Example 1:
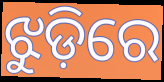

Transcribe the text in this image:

ଝୁଡ଼ିରେ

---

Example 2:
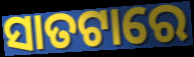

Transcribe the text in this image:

ସାତଟାରେ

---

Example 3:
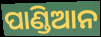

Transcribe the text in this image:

ପାଣ୍ଡିଆନ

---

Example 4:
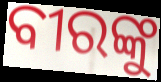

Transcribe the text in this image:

ବୀରଙ୍କୁ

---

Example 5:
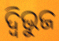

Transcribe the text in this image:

ଦ୍ଵିଭୁଜ